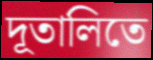
দূতালিতে